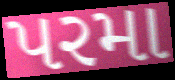
પરમા